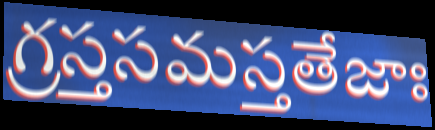
గ్రస్తసమస్తతేజాః